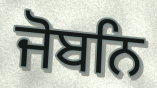
ਜੋਬਨਿ